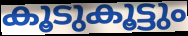
കൂടുകൂട്ടും